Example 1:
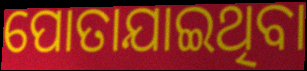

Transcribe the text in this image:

ପୋତାଯାଇଥିବା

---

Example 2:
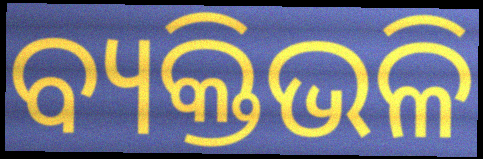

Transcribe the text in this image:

ବ୍ୟକ୍ତିଭଳି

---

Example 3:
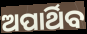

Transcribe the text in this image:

ଅପାର୍ଥିବ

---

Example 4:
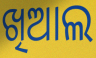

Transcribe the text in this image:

ଖିଆଲ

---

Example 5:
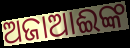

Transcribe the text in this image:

ଅଜାଆଈଙ୍କ